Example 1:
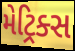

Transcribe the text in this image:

મેટ્રિક્સ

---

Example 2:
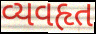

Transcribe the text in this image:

વ્યવહૃત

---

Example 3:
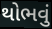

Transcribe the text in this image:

થોભવું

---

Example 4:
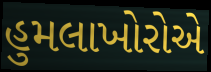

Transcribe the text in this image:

હુમલાખોરોએ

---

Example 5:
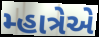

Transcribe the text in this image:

મ્હાત્રેએ